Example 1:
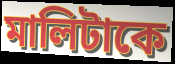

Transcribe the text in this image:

মালিটাকে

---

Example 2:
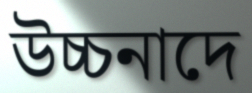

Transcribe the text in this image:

উচ্চনাদে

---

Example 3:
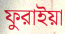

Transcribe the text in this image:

ফুরাইয়া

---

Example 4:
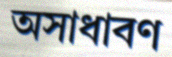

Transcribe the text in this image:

অসাধাবণ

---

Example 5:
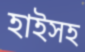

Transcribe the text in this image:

হাইসহ